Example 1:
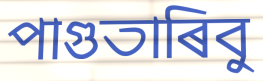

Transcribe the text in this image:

পাগুতাৰিবু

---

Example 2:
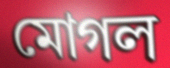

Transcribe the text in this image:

মোগল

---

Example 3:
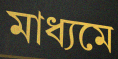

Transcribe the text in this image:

মাধ্যমে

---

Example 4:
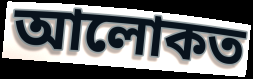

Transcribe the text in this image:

আলোকত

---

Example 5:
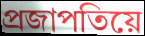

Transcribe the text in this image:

প্ৰজাপতিয়ে